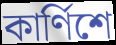
কার্ণিশে